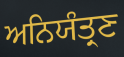
ਅਨਿਯੰਤ੍ਰਣ